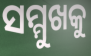
ସମ୍ମୁଖକୁ